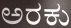
ಅರಕು